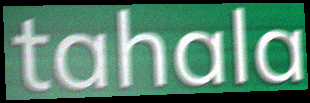
tahala